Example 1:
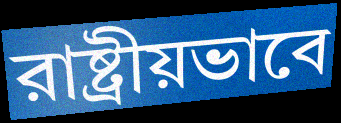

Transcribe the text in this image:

রাষ্ট্রীয়ভাবে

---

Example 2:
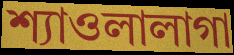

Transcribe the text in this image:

শ্যাওলালাগা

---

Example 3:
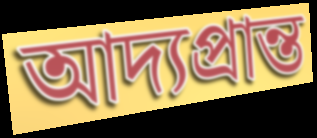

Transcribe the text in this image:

আদ্যপ্রান্ত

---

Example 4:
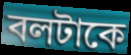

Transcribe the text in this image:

বলটাকে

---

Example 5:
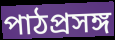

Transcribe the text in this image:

পাঠপ্রসঙ্গ